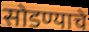
सोडण्याचे